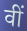
वीं